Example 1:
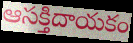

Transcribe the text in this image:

ఆసక్తిదాయకం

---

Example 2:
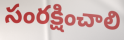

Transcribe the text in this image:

సంరక్షించాలి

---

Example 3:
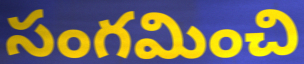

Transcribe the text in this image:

సంగమించి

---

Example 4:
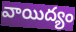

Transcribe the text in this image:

వాయిద్యం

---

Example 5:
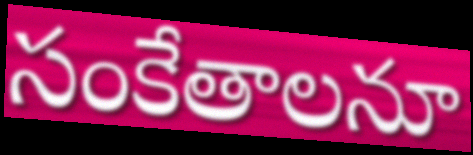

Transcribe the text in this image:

సంకేతాలనూ